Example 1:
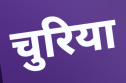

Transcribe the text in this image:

चुरिया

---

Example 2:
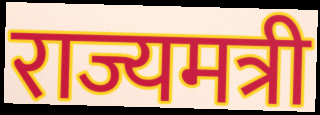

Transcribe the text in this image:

राज्यमत्री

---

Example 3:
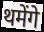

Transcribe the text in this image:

थमेंगे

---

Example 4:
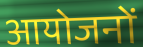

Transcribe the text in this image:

आयोजनों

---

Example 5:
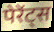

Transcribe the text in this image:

पेरेंट्स